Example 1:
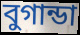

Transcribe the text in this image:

বুগান্ডা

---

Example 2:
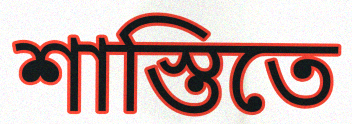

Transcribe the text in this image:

শাস্তিতে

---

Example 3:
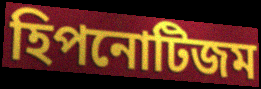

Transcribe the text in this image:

হিপনোটিজম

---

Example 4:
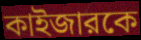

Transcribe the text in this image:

কাইজারকে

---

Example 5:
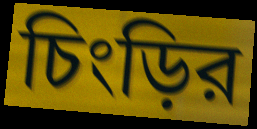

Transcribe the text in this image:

চিংড়ির